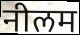
नीलम